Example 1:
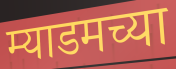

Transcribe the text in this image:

म्याडमच्या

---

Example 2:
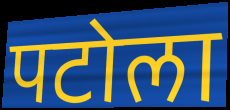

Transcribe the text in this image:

पटोला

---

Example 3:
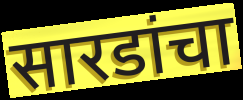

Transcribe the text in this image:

सारडांचा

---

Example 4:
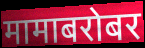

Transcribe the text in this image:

मामाबरोबर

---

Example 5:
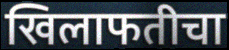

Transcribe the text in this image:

खिलाफतीचा